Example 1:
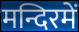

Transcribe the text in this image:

मन्दिरमें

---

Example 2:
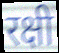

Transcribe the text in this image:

रक्षी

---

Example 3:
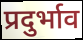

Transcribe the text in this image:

प्रदुर्भाव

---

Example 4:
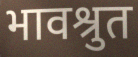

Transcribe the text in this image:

भावश्रुत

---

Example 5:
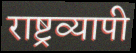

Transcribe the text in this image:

राष्ट्रव्यापी